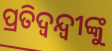
ପ୍ରତିଦ୍ବନ୍ଦ୍ବୀଙ୍କୁ